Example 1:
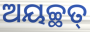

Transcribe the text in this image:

ଅୟଚ୍ଛତ୍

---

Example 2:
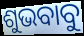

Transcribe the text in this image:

ଶୁଭବାବୁ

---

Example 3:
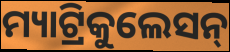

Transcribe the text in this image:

ମ୍ୟାଟ୍ରିକୁଲେସନ୍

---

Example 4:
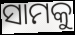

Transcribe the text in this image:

ସାମକୁ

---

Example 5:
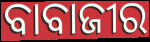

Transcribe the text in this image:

ବାବାଜୀର